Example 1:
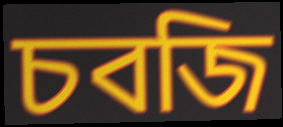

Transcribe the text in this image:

চবজি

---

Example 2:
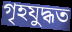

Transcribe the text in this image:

গৃহযুদ্ধত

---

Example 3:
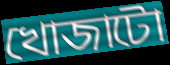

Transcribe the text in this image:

খোজাটো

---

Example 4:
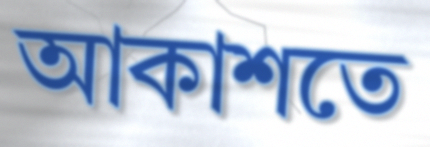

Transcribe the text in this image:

আকাশতে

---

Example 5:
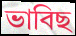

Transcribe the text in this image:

ভাবিছ